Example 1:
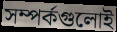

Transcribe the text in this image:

সম্পর্কগুলোই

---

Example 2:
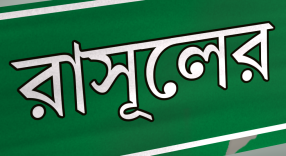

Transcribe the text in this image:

রাসূলের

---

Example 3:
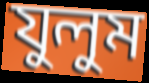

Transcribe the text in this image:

যুলুম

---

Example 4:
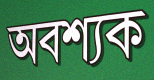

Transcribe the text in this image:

অবশ্যক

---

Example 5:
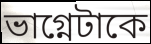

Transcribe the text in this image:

ভাগ্নেটাকে